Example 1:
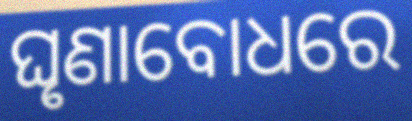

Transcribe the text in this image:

ଘୃଣାବୋଧରେ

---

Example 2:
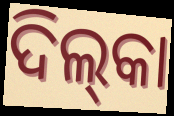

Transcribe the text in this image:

ଦିଲ୍‌କା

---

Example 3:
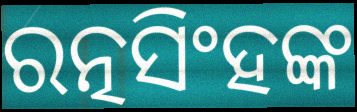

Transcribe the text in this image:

ରତ୍ନସିଂହଙ୍କ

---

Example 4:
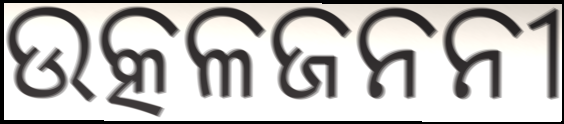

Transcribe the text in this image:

ଉତ୍କଳଜନନୀ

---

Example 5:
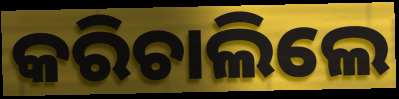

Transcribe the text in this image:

କରିଚାଲିଲେ